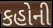
કહોની